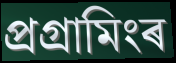
প্ৰগ্ৰামিংৰ